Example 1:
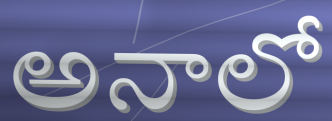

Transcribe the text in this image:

అనాలో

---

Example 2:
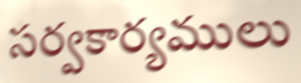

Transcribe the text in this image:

సర్వకార్యములు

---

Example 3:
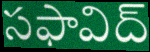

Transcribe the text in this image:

సఫావిద్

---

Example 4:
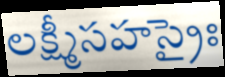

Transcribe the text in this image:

లక్ష్మీసహస్రైః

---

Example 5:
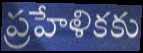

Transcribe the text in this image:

ప్రహేళికకు